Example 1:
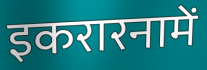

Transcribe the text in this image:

इकरारनामें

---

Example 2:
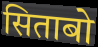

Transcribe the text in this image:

सिताबो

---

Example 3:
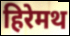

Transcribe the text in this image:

हिरेमथ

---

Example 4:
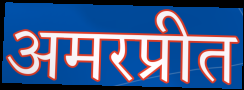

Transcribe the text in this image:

अमरप्रीत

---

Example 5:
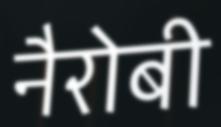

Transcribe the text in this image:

नैरोबी